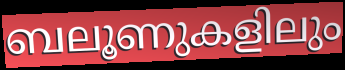
ബലൂണുകളിലും